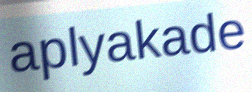
aplyakade